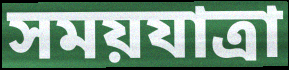
সময়যাত্রা